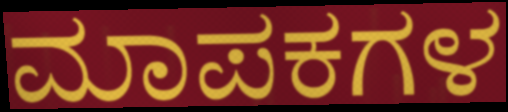
ಮಾಪಕಗಳ